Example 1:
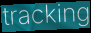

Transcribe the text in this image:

tracking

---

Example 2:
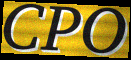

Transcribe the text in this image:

CPO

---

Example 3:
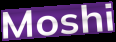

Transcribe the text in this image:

Moshi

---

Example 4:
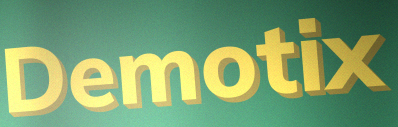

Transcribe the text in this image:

Demotix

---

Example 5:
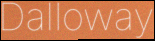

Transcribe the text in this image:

Dalloway